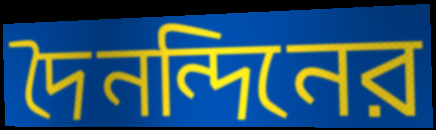
দৈনন্দিনের